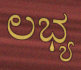
ಲಭ್ಯ